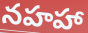
నహహా